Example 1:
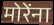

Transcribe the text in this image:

मोरेंना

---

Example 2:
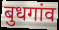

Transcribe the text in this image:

बुधगांव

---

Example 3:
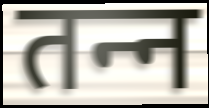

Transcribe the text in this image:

तन्न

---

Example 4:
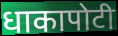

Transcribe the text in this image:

धाकापोटी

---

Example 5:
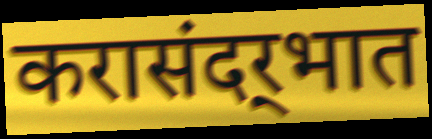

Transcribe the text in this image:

करासंदर्भात